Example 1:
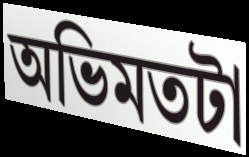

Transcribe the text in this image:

অভিমতটা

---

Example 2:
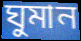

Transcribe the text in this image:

ঘুমান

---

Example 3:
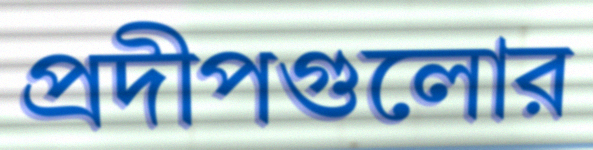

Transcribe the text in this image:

প্রদীপগুলোর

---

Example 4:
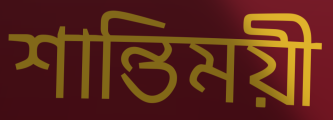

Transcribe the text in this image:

শান্তিময়ী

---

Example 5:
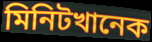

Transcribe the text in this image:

মিনিটখানেক